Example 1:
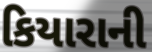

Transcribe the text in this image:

કિયારાની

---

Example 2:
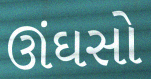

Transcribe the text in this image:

ઊંઘસો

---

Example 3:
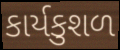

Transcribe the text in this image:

કાર્યકુશળ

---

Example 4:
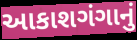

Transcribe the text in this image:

આકાશગંગાનું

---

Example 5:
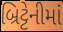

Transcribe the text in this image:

બ્રિટ્ટેનીમાં